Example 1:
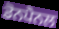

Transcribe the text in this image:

ਡੋਨਪੈਨਲ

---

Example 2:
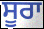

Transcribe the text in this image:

ਸੂਰਾ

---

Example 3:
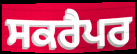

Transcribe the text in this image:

ਸਕਰੈਪਰ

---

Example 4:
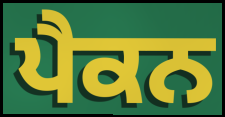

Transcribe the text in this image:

ਪੈਕਨ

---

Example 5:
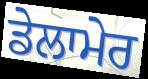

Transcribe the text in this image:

ਡੇਲਾਮੇਰ